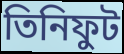
তিনিফুট